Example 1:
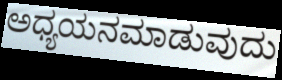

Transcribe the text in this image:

ಅಧ್ಯಯನಮಾಡುವುದು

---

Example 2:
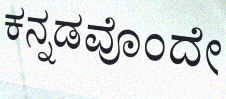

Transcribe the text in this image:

ಕನ್ನಡವೊಂದೇ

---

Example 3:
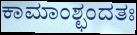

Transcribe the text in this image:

ಕಾಮಾಂಶ್ಛಂದತಃ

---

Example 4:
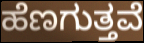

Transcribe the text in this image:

ಹೆಣಗುತ್ತವೆ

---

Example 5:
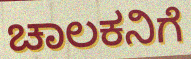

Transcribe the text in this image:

ಚಾಲಕನಿಗೆ